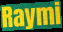
Raymi